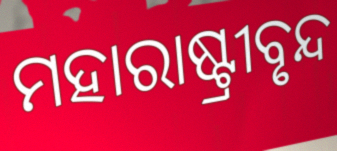
ମହାରାଷ୍ଟ୍ରୀବୃନ୍ଦ